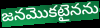
జనమొకటైనను